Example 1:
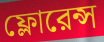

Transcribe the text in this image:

ফ্লোরেন্স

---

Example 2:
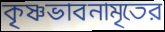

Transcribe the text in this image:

কৃষ্ণভাবনামৃতের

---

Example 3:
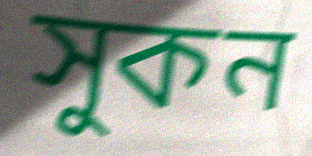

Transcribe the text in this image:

সুকন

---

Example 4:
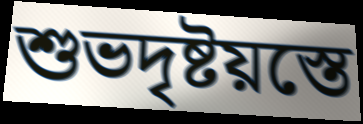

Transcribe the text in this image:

শুভদৃষ্টয়স্তে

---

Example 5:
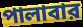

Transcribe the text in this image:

পালাবার